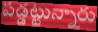
పడ్డట్టున్నారు